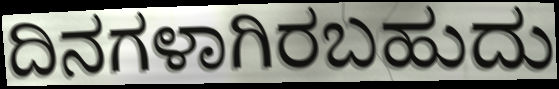
ದಿನಗಳಾಗಿರಬಹುದು